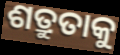
ଶତ୍ରୁତାକୁ